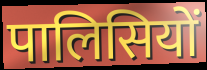
पालिसियों